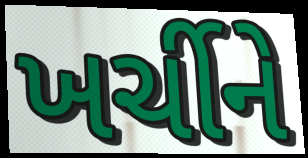
ખર્ચીને